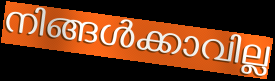
നിങ്ങൾക്കാവില്ല